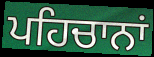
ਪਹਿਚਾਨਾਂ